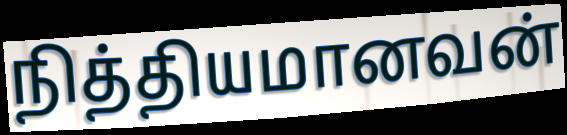
நித்தியமானவன்